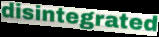
disintegrated